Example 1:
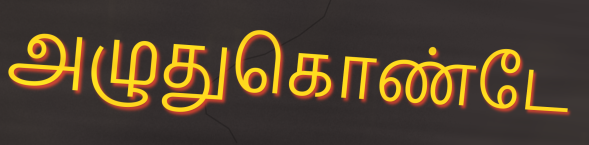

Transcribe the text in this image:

அழுதுகொண்டே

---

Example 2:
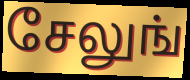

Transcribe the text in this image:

சேலுங்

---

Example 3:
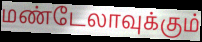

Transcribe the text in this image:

மண்டேலாவுக்கும்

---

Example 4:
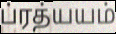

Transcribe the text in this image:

ப்ரத்யயம்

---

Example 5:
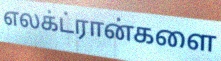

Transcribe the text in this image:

எலக்ட்ரான்களை